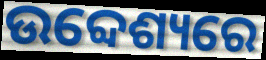
ଉବ୍ଦେଶ୍ୟରେ